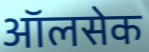
ऑलसेक